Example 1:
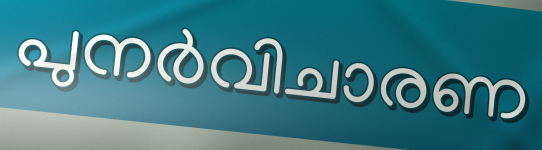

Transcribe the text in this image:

പുനർവിചാരണ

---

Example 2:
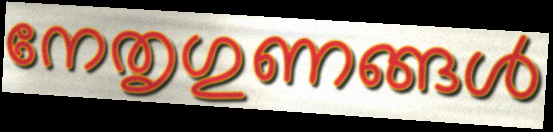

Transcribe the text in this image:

നേതൃഗുണങ്ങൾ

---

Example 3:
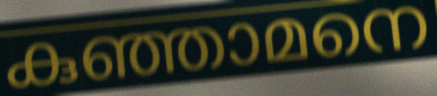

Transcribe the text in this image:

കുഞ്ഞാമനെ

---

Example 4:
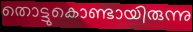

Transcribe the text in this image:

തൊട്ടുകൊണ്ടായിരുന്നു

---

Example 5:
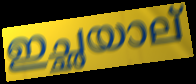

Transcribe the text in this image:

ഇച്ഛയാല്